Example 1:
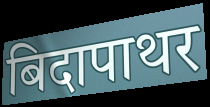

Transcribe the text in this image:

बिदापाथर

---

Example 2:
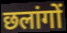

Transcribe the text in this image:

छलांगों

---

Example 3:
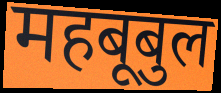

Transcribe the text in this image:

महबूबुल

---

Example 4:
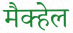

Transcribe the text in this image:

मैक्हेल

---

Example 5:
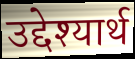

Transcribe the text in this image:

उद्देश्यार्थ